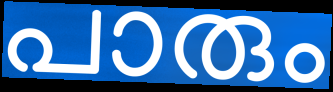
പാരും